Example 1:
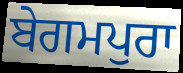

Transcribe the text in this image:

ਬੇਗਮਪੁਰਾ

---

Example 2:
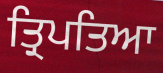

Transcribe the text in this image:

ਤ੍ਰਿਪਤਿਆ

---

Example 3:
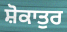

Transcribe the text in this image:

ਸ਼ੋਕਾਤੁਰ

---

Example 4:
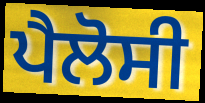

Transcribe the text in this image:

ਪੈਲੋਸੀ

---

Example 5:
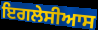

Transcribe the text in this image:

ਇਗਲੇਸੀਆਸ